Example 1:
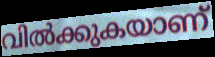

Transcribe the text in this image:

വിൽക്കുകയാണ്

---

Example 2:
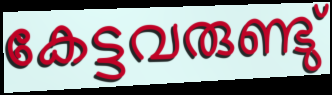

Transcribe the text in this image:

കേട്ടവരുണ്ടു്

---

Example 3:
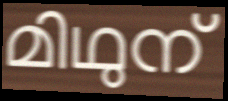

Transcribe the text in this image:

മിഥുന്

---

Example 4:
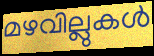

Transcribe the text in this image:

മഴവില്ലുകൾ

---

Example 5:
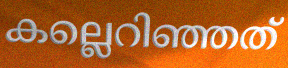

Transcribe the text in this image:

കല്ലെറിഞ്ഞത്